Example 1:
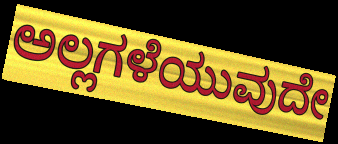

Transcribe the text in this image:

ಅಲ್ಲಗಳೆಯುವುದೇ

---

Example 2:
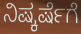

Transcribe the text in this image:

ನಿಷ್ಕರ್ಷೆಗೆ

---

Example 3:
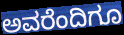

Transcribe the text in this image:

ಅವರೆಂದಿಗೂ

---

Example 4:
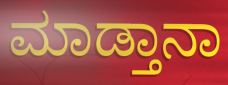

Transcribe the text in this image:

ಮಾಡ್ತಾನಾ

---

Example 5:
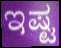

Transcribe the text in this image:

ಇಷ್ಟ